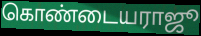
கொண்டையராஜூ